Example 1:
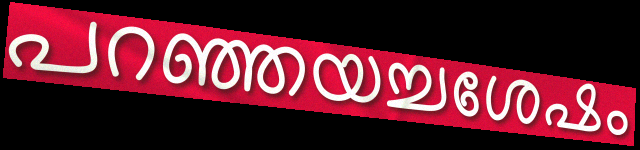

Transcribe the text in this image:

പറഞ്ഞയച്ചശേഷം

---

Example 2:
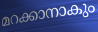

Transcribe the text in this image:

മറക്കാനാകും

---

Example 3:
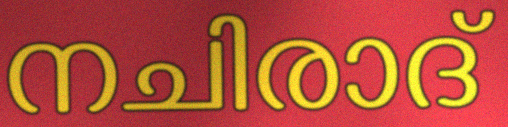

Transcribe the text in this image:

നചിരാദ്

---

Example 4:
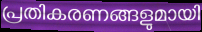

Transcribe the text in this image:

പ്രതികരണങ്ങളുമായി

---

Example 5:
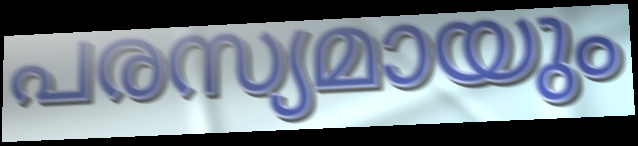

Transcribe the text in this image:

പരസ്യമായും